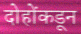
दोहोंकडून